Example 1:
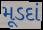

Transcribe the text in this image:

મૂડદાં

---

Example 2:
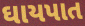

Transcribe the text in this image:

ઘાયપાત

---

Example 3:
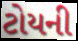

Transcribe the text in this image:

ટોયની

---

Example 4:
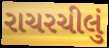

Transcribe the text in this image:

રાચરચીલું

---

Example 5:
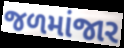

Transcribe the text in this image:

જળમાંજાર